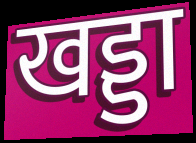
खड्डा